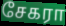
சேகரா